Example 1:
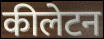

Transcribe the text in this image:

कीलेटन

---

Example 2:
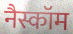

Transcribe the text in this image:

नैस्कॉम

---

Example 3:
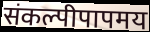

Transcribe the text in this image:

संकल्पीपापमय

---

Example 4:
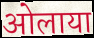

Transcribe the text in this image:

ओलाया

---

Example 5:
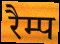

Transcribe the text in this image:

रैम्प